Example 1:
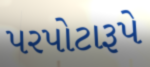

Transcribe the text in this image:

પરપોટારૂપે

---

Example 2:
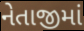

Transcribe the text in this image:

નેતાજીમાં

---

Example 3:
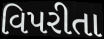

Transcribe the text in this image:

વિપરીતા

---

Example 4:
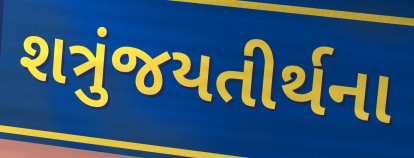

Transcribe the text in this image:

શત્રુંજયતીર્થના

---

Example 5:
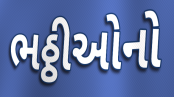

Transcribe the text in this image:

ભઠ્ઠીઓનો